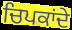
ਚਿਪਕਾਂਦੇ